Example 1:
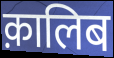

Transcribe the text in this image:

क़ालिब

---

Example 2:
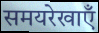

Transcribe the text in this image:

समयरेखाएँ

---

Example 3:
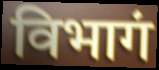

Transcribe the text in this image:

विभागं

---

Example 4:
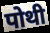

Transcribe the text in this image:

पोथी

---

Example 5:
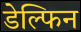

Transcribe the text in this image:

डेल्फिन